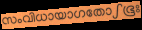
സംവിധായാഗതോഽഭൂഃ